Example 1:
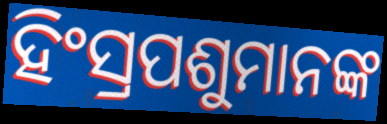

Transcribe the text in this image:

ହିଂସ୍ରପଶୁମାନଙ୍କ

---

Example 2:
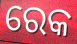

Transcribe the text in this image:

ରେକ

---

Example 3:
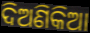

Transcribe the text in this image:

ଦିଅଣିକିଆ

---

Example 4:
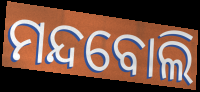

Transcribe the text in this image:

ମନ୍ଦବୋଲି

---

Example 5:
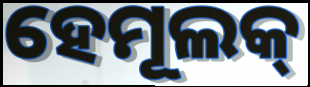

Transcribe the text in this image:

ହେମୂଲକ୍